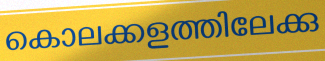
കൊലക്കളത്തിലേക്കു